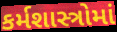
કર્મશાસ્ત્રોમાં